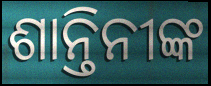
ଶାନ୍ତିନୀଙ୍କ